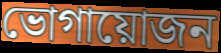
ভোগায়োজন